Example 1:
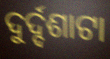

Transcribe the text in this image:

ଦୁର୍ଦ୍ଦଶାଟା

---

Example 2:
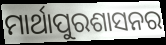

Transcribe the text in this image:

ମାର୍ଥାପୁରଶାସନର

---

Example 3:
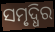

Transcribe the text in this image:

ସମୃଦ୍ଧିର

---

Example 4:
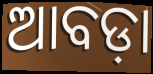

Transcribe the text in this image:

ଆବଡ଼ା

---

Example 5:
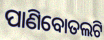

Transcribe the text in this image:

ପାଣିବୋତଲଟି